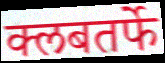
क्लबतर्फे